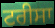
ਟਰੀਸਾ